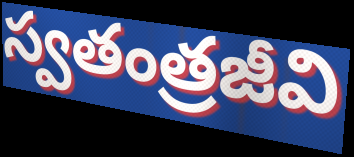
స్వతంత్రజీవి